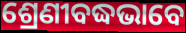
ଶ୍ରେଣୀବଦ୍ଧଭାବେ